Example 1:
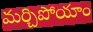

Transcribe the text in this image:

మర్చిపోయాం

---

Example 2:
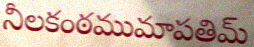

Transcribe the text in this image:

నీలకంఠముమాపతిమ్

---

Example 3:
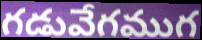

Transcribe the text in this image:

గడువేగముగ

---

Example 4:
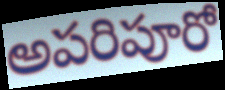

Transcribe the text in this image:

అపరిపూరో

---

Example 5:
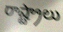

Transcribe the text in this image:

రాష్ట్రాలు